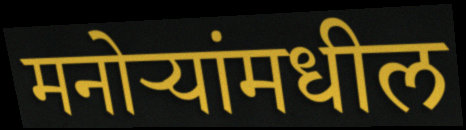
मनोऱ्यांमधील